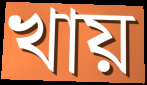
খায়